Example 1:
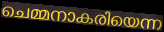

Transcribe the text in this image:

ചെമ്മനാകരിയെന്ന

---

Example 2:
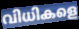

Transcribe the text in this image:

വിധികളെ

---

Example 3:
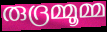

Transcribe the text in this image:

രുദ്രമ്മൂമ്മ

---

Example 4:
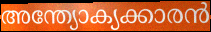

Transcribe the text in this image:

അന്ത്യോക്യക്കാരൻ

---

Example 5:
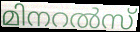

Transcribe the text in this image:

മിനറൽസ്